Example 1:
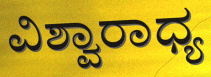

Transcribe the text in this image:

ವಿಶ್ವಾರಾಧ್ಯ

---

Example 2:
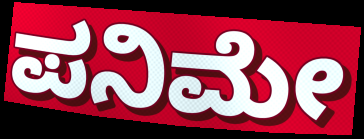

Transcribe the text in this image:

ಪನಿಮೇ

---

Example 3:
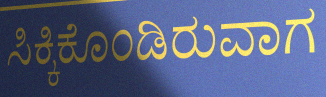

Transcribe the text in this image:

ಸಿಕ್ಕಿಕೊಂಡಿರುವಾಗ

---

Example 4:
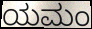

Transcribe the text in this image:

ಯಮಂ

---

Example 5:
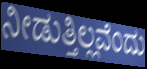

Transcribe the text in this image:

ನೀಡುತ್ತಿಲ್ಲವೆಂದು